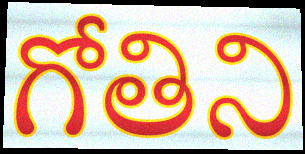
గోతిని